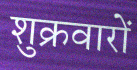
शुक्रवारों